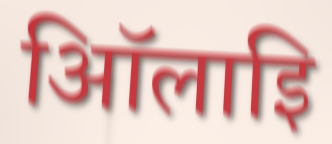
ऑिलाइि